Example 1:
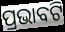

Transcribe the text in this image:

ପ୍ରଭାବଟି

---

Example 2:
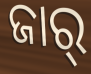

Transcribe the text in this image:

ଜାର୍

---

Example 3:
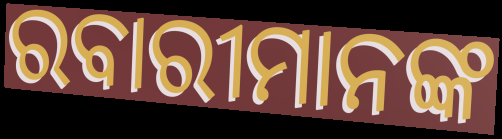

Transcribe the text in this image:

ରବାରୀମାନଙ୍କ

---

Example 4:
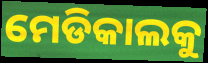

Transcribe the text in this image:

ମେଡିକାଲକୁ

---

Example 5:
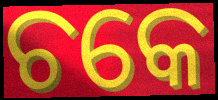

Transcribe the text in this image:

ଚକେ